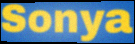
Sonya